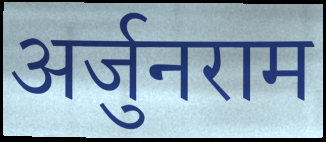
अर्जुनराम